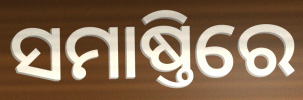
ସମାଷ୍ତିରେ